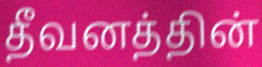
தீவனத்தின்